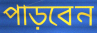
পাড়বেন